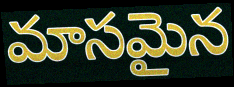
మాసమైన